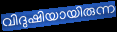
വിദുഷിയായിരുന്ന